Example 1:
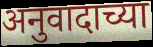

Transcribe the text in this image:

अनुवादाच्या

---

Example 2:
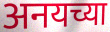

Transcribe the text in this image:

अनयच्या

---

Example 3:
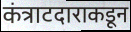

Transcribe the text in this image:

कंत्राटदाराकडून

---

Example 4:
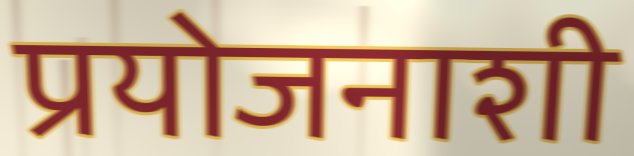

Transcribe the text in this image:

प्रयोजनाशी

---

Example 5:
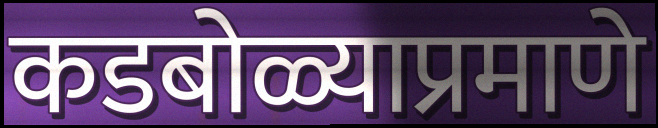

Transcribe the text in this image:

कडबोळ्याप्रमाणे